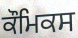
ਕੌਮਿਕਸ